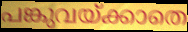
പങ്കുവയ്ക്കാതെ